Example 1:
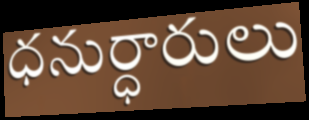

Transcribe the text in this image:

ధనుర్ధారులు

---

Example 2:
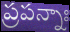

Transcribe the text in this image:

ప్రపన్నాః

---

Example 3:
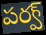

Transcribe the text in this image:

పర్వ్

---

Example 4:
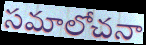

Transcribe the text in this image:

సమాలోచనా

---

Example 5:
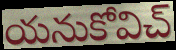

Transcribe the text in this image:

యనుకోవిచ్